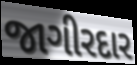
જાગીરદાર